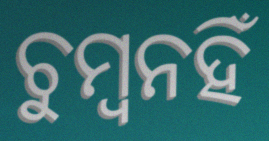
ଚୁମ୍ବନହିଁ